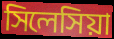
সিলেসিয়া